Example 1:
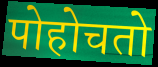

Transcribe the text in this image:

पोहोचतो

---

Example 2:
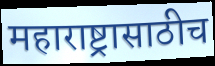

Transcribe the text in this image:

महाराष्ट्रासाठीच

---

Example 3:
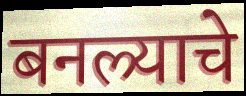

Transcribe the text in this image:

बनल्याचे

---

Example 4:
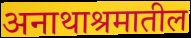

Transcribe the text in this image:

अनाथाश्रमातील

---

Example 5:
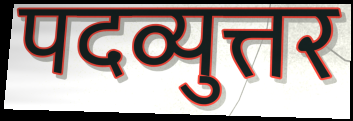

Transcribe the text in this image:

पदव्युत्तर